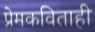
प्रेमकविताही